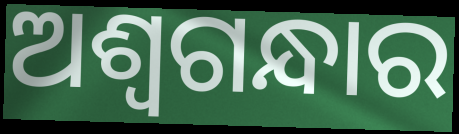
ଅଶ୍ୱଗନ୍ଧାର